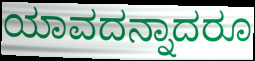
ಯಾವದನ್ನಾದರೂ